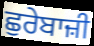
ਛੁਰੇਬਾਜ਼ੀ